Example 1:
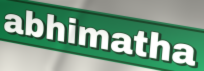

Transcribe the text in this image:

abhimatha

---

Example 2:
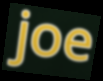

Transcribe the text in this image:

joe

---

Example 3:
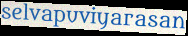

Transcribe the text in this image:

selvapuviyarasan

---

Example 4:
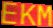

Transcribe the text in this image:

EKM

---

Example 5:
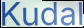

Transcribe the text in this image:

Kudal